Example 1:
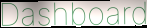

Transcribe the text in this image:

Dashboard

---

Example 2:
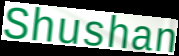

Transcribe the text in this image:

Shushan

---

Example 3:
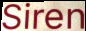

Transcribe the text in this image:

Siren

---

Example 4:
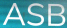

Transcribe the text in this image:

ASB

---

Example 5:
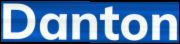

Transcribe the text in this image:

Danton